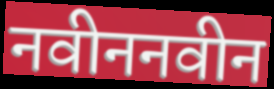
नवीननवीन